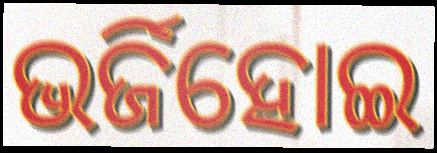
ଭର୍ଜିହୋଇ